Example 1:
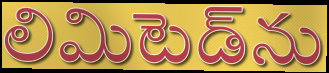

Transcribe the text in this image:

లిమిటెడ్‌ను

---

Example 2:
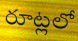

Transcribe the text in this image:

రూట్లలో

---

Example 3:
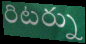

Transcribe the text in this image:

రిటర్ను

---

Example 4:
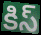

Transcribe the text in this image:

కిస్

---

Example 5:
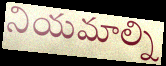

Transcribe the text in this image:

నియమాల్ని